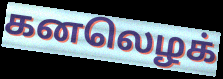
கனலெழக்